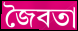
জৈবতা